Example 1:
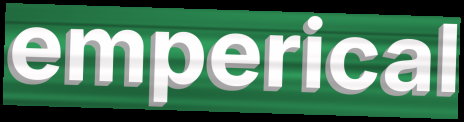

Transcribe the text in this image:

emperical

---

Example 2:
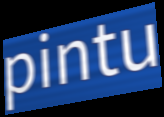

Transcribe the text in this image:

pintu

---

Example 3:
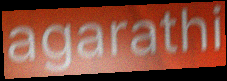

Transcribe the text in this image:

agarathi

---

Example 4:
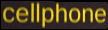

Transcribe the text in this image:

cellphone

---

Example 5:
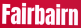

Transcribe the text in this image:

Fairbairn